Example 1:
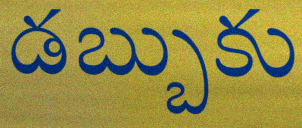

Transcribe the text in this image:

డబ్బుకు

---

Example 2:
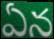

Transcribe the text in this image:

ఏన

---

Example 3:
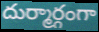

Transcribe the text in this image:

దుర్మార్గంగా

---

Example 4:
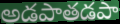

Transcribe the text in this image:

అడపాతడపా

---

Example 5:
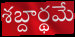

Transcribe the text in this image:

శబ్దార్థమే